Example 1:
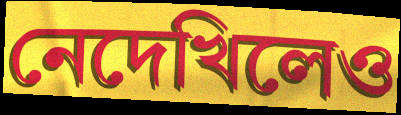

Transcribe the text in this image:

নেদেখিলেও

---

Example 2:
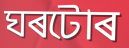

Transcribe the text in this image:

ঘৰটোৰ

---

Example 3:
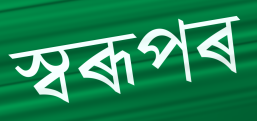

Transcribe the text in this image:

স্বৰূপৰ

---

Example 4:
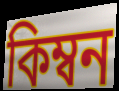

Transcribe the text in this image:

কিম্বন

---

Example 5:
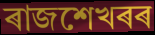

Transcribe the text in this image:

ৰাজশেখৰৰ